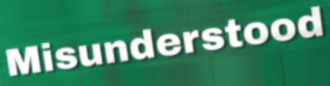
Misunderstood